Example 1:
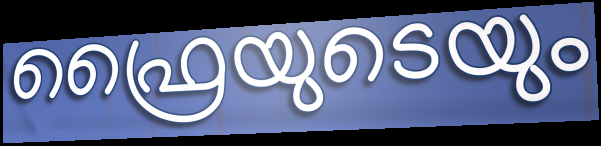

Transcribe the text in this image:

ഫ്രൈയുടെയും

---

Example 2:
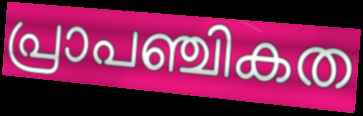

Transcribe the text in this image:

പ്രാപഞ്ചികത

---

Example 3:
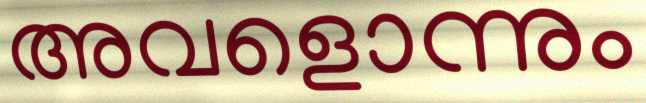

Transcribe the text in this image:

അവളൊന്നും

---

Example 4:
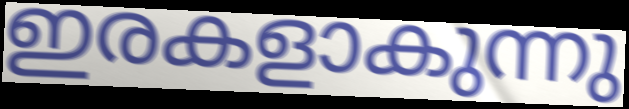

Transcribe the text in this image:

ഇരകളാകുന്നു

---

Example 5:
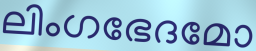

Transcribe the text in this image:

ലിംഗഭേദമോ